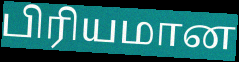
பிரியமான